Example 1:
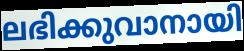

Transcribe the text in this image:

ലഭിക്കുവാനായി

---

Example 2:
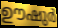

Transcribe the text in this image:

ഊഷുർ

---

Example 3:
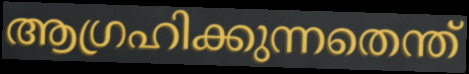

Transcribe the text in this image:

ആഗ്രഹിക്കുന്നതെന്ത്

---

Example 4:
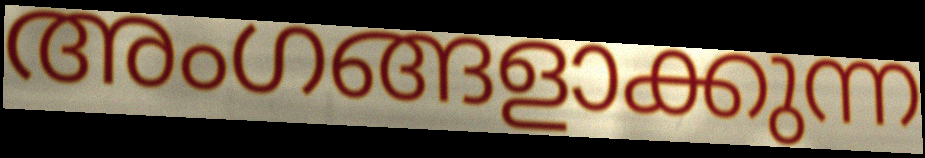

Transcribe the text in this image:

അംഗങ്ങളാക്കുന്ന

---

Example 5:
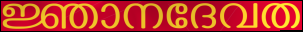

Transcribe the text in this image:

ജ്ഞാനദേവത